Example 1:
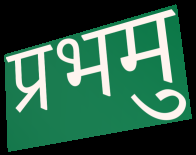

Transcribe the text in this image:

प्रभमु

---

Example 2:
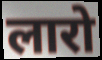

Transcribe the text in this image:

लारो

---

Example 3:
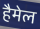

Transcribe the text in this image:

हैमेल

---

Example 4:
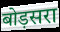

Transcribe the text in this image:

बोड़सरा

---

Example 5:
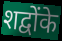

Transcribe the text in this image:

शद्वोंके